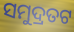
ସମୁଦ୍ରତଟ